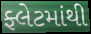
ફ્લેટમાંથી